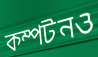
কম্পটনও